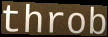
throb